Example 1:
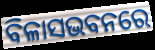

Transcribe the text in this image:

ବିଳାସଭବନରେ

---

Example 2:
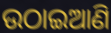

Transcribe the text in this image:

ଉଠାଇଆଣି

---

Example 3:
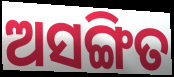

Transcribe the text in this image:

ଅସଙ୍ଗିତ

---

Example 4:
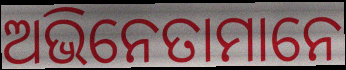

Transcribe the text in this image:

ଅଭିନେତାମାନେ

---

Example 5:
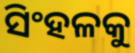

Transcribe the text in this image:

ସିଂହଳକୁ